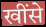
खींसे